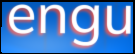
engu